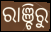
ରାଞ୍ଚିରୁ